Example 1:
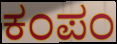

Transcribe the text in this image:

ಕಂಪಂ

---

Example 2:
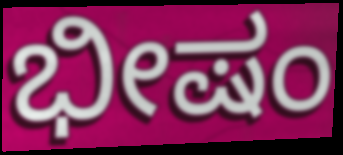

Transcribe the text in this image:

ಭೀಷಂ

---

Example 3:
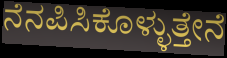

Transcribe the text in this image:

ನೆನಪಿಸಿಕೊಳ್ಳುತ್ತೇನೆ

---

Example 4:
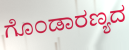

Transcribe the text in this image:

ಗೊಂಡಾರಣ್ಯದ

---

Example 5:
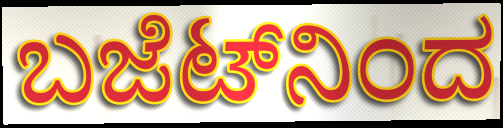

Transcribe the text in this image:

ಬಜೆಟ್‌ನಿಂದ